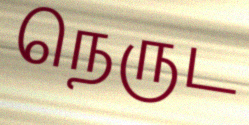
நெருட